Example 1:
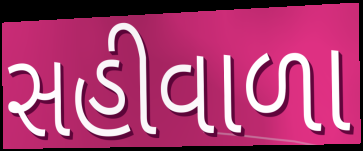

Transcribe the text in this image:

સહીવાળા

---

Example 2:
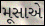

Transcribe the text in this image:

મૂસાએ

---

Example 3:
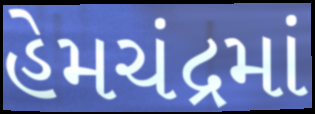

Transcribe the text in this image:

હેમચંદ્રમાં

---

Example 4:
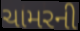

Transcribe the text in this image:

ચામરની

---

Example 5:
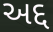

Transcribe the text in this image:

અદ્દ